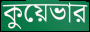
কুয়েভার